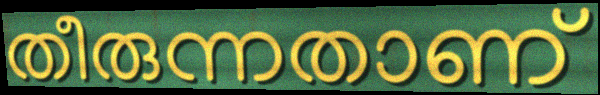
തീരുന്നതാണ്